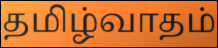
தமிழ்வாதம்